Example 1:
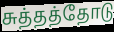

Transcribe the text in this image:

சுத்தத்தோடு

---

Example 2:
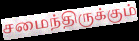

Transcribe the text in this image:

சமைந்திருக்கும்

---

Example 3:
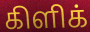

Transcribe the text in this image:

கிளிக்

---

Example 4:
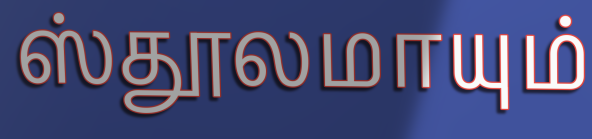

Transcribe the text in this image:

ஸ்தூலமாயும்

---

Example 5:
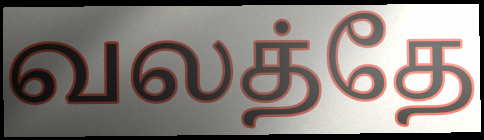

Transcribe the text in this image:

வலத்தே